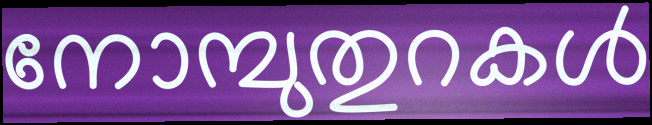
നോമ്പുതുറകൾ